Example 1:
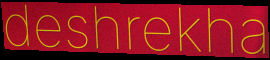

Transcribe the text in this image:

deshrekha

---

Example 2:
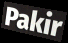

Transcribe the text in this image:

Pakir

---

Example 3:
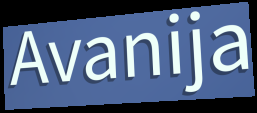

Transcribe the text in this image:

Avanija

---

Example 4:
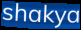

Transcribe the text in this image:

shakya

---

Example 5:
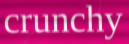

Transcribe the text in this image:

crunchy